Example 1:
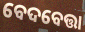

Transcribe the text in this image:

ବେଦବେତ୍ତା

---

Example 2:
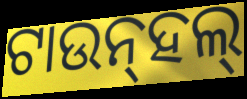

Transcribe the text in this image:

ଟାଉନ୍‌ହଲ୍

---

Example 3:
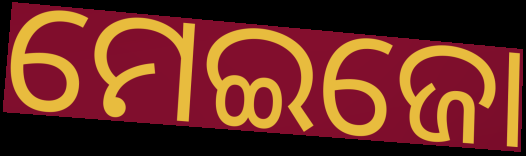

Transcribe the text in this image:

ମେଇଜୋ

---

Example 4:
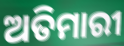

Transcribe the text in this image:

ଅତିମାରୀ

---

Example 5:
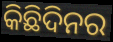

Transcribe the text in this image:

କିଛିଦିନର